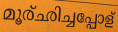
മൂര്ഛിച്ചപ്പോള്